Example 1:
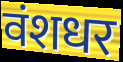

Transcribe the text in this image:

वंशधर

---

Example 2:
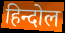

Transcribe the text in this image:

हिन्दोल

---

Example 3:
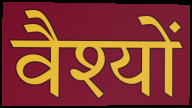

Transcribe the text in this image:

वैश्‍यों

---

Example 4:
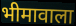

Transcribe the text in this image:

भीमावाला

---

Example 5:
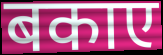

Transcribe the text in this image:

बकाए